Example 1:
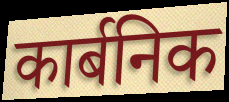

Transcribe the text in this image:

कार्बनिक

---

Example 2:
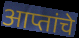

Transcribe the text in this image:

आप्तांचे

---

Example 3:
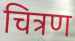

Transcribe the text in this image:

चित्रण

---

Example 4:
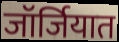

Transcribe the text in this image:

जॉर्जियात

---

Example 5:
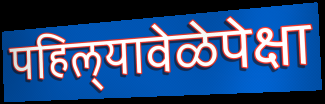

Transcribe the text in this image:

पहिल्यावेळेपेक्षा